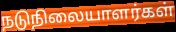
நடுநிலையாளர்கள்